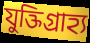
যুক্তিগ্রাহ্য